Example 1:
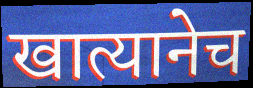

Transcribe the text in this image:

खात्यानेच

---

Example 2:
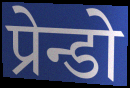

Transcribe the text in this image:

प्रेन्डो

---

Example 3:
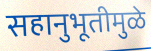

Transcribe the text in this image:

सहानुभूतीमुळे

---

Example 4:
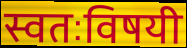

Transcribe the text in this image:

स्वतःविषयी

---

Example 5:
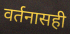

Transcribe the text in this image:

वर्तनासही